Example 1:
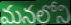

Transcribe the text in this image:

మనలోని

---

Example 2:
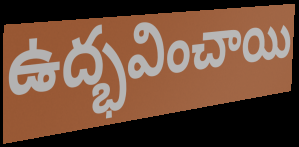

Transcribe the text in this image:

ఉద్భవించాయి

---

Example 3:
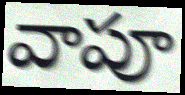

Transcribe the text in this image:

వాపూ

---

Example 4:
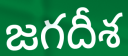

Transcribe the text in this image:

జగదీశ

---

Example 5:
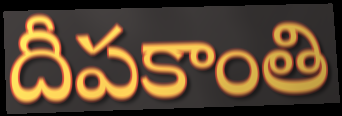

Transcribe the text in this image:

దీపకాంతి